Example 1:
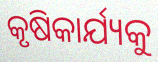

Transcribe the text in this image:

କୃଷିକାର୍ଯ୍ୟକୁ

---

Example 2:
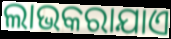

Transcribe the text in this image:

ଲାଭକରାଯାଏ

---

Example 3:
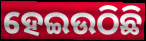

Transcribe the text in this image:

ହେଇଉଠିଛି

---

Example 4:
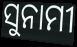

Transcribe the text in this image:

ସୁନାମୀ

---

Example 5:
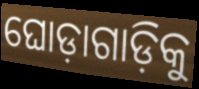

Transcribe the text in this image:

ଘୋଡ଼ାଗାଡ଼ିକୁ